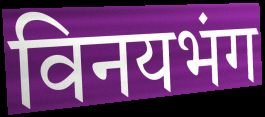
विनयभंग